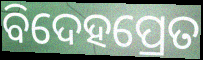
ବିଦେହପ୍ରେତ